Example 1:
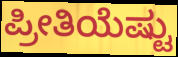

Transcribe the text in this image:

ಪ್ರೀತಿಯೆಷ್ಟು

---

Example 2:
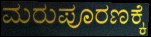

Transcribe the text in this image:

ಮರುಪೂರಣಕ್ಕೆ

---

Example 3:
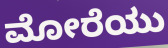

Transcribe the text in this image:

ಮೋರೆಯು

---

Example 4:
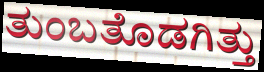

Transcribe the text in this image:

ತುಂಬತೊಡಗಿತ್ತು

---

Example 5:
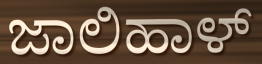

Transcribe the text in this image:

ಜಾಲಿಹಾಳ್